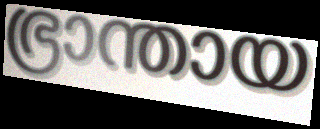
ഭ്രാന്തായ